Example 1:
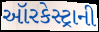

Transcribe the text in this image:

ઑરકેસ્ટ્રાની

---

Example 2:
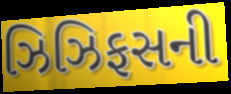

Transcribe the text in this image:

ઝિઝિફસની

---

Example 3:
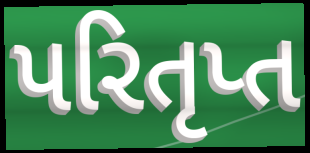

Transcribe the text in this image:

પરિતૃપ્ત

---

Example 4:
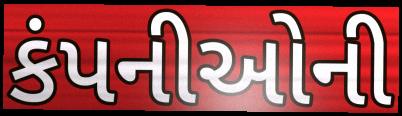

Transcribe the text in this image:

કંપનીઓની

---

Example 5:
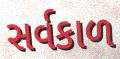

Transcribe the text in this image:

સર્વકાળ